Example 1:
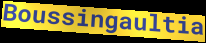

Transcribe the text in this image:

Boussingaultia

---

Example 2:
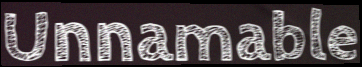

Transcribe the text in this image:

Unnamable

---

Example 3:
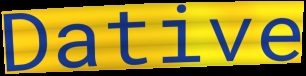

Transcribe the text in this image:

Dative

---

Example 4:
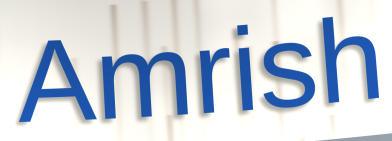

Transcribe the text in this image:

Amrish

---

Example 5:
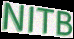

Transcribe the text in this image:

NITB